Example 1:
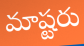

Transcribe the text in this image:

మాష్టరు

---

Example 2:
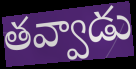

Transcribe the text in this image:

తవ్వాడు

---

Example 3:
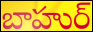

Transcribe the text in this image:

బాహుర్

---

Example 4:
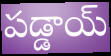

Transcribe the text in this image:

పడ్డాయ్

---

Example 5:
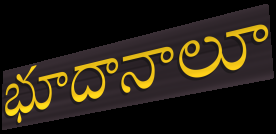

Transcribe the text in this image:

భూదానాలూ